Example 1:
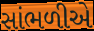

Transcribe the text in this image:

સાંભળીએ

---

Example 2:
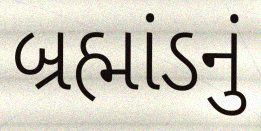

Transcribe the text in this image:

બ્રહ્માંડનું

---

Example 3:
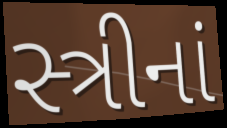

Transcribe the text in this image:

સ્ત્રીનાં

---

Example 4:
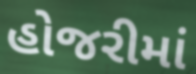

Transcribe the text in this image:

હોજરીમાં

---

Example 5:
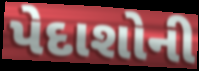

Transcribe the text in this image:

પેદાશોની